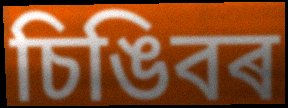
চিঙিবৰ